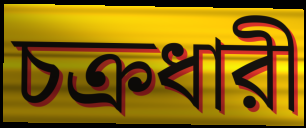
চক্রধারী